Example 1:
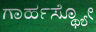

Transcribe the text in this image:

ಗಾರ್ಹಸ್ಥ್ಯೋ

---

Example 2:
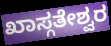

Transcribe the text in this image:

ಖಾಸ್ಗತೇಶ್ವರ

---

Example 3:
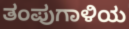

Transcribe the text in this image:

ತಂಪುಗಾಳಿಯ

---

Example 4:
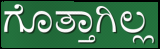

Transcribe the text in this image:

ಗೊತ್ತಾಗಿಲ್ಲ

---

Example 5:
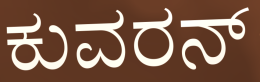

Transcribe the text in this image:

ಕುವರನ್